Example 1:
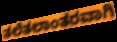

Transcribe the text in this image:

ತಲೆತಲಾಂತರವಾಗಿ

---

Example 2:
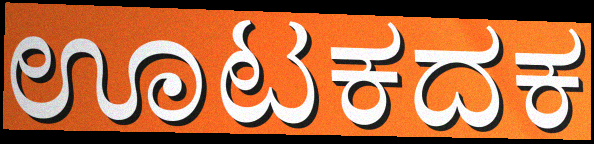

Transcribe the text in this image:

ಊಟಕದಕ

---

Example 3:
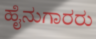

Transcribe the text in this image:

ಹೈನುಗಾರರು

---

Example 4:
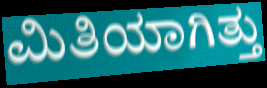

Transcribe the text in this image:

ಮಿತಿಯಾಗಿತ್ತು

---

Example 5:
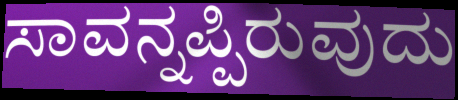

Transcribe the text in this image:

ಸಾವನ್ನಪ್ಪಿರುವುದು